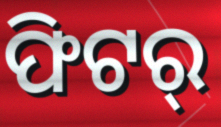
ଫିଟର୍